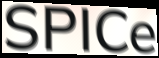
SPICe